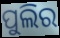
ପୁଲିର